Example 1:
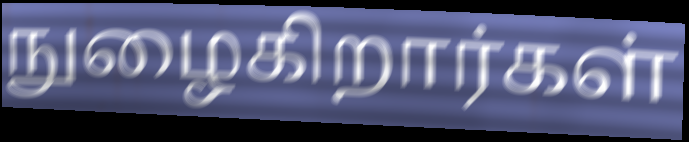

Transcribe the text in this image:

நுழைகிறார்கள்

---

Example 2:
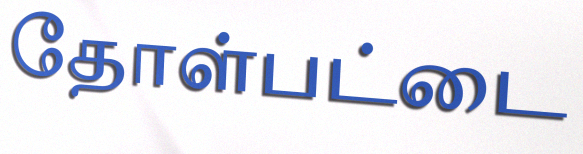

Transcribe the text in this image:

தோள்பட்டை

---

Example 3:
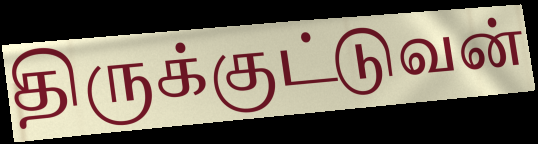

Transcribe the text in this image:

திருக்குட்டுவன்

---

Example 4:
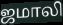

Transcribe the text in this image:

ஜமாலி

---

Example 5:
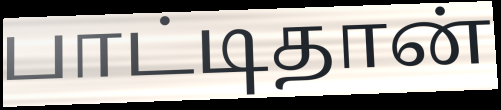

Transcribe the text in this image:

பாட்டிதான்